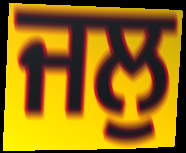
ਜਲੁ